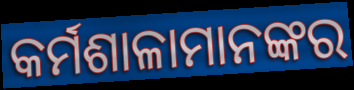
କର୍ମଶାଳାମାନଙ୍କର